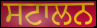
ਸਟਾਲਨ